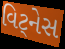
વિટ્નેસ